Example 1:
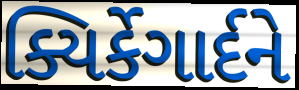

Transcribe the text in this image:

ક્યિર્કેગાર્દને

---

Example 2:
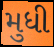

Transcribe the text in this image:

મુધી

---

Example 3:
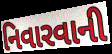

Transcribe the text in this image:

નિવારવાની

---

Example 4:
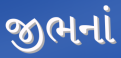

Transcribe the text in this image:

જીભનાં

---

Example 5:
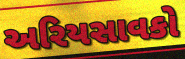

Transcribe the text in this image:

અરિયસાવકો